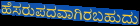
ಹೆಸರುಪದವಾಗಿರಬಹುದು